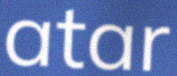
atar